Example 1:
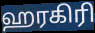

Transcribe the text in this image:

ஹரகிரி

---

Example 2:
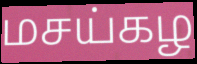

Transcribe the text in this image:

மசய்கழ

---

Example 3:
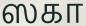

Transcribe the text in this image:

ஸகா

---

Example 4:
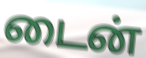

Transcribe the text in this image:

டைன்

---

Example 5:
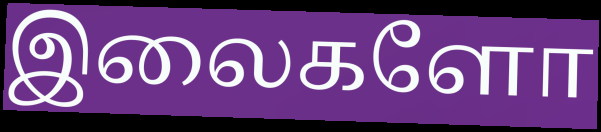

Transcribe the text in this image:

இலைகளோ